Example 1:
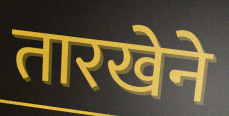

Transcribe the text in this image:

तारखेने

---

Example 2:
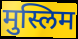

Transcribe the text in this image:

मुस्लिम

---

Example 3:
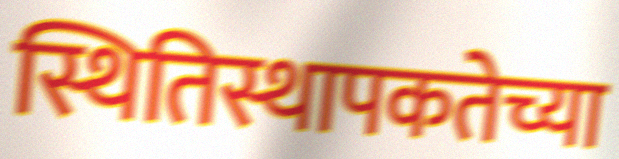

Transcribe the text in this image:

स्थितिस्थापकतेच्या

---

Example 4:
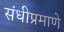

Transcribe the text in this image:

संधीप्रमाणे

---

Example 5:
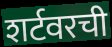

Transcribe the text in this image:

शर्टवरची